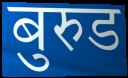
बुरुड